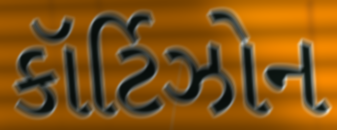
કૉર્ટિઝોન